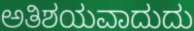
ಅತಿಶಯವಾದುದು